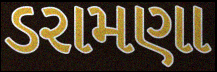
ડરામણા